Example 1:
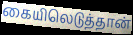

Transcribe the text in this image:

கையிலெடுத்தான்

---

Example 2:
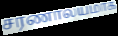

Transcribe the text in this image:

சரணாலயமாக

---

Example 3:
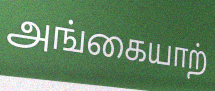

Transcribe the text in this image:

அங்கையாற்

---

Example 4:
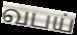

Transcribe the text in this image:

வபய்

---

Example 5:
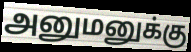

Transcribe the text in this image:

அனுமனுக்கு